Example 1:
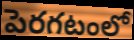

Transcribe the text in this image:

పెరగటంలో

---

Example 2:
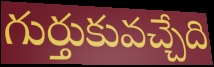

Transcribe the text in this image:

గుర్తుకువచ్చేది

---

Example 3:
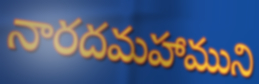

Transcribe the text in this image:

నారదమహాముని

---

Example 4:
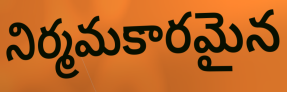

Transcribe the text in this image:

నిర్మమకారమైన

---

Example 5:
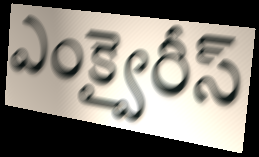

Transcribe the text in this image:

ఎంక్వైరీస్